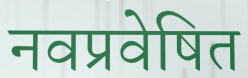
नवप्रवेषित